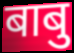
बाबु